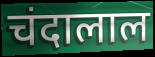
चंदालाल